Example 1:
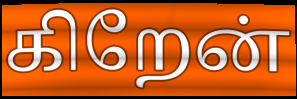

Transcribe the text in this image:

கிறேன்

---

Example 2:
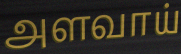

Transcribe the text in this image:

அளவாய்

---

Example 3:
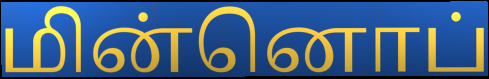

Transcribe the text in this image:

மின்னொப்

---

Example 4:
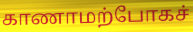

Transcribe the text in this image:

காணாமற்போகச்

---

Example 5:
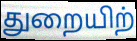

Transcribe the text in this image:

துறையிற்